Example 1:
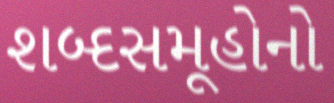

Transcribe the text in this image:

શબ્દસમૂહોનો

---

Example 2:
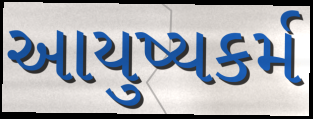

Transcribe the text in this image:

આયુષ્યકર્મ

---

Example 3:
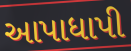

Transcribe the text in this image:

આપાધાપી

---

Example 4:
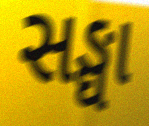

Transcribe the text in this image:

સઙ્ઘા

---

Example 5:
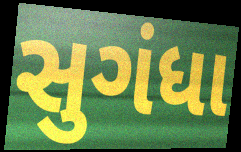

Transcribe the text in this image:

સુગંધા